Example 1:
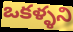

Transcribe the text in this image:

ఒకళ్ళని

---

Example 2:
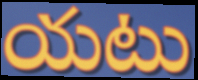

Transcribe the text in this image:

యటు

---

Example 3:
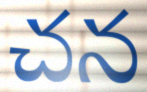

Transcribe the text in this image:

చన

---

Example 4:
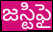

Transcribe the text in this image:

జస్టిఫై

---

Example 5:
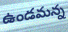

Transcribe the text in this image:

ఉండమన్న